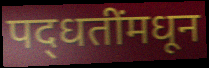
पद्धतींमधून